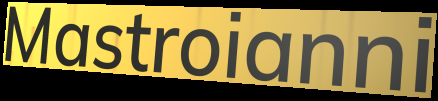
Mastroianni